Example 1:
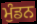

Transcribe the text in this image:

ਮੁੰਡਨ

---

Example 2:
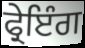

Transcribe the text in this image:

ਫ੍ਰੇਇੰਗ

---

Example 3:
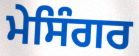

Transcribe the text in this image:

ਮੇਸਿੰਗਰ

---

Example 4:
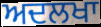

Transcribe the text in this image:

ਅਦਲਖਾ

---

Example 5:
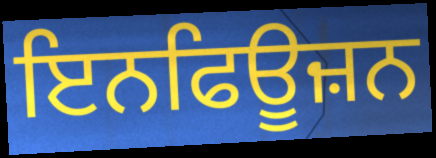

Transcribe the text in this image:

ਇਨਫਿਊਜ਼ਨ